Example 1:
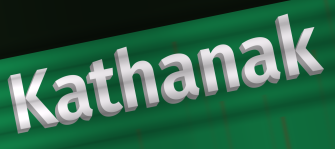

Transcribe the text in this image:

Kathanak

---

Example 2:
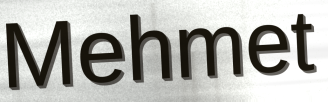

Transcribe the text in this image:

Mehmet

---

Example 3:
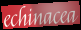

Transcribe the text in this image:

echinacea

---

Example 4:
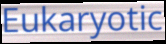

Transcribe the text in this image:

Eukaryotic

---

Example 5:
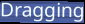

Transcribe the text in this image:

Dragging